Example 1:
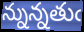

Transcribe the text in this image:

న్నున్నతుఁ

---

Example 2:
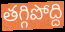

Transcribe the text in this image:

తగ్గిపోద్ది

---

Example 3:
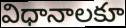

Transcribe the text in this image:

విధానాలకూ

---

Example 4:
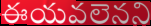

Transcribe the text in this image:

ఈయవలెనని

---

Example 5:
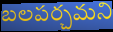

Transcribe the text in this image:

బలపర్చమని